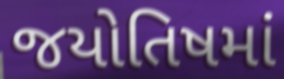
જયોતિષમાં